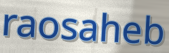
raosaheb